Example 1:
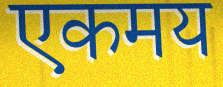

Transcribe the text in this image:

एकमय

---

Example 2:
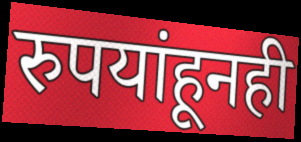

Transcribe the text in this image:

रुपयांहूनही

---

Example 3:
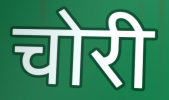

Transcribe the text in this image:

चोरी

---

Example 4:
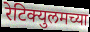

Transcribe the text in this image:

रेटिक्युलमच्या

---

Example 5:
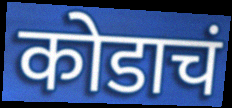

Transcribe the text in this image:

कोडाचं